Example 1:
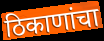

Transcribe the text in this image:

ठिकाणांचा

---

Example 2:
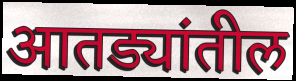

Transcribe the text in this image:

आतड्यांतील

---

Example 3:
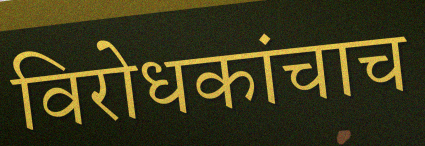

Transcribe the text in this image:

विरोधकांचाच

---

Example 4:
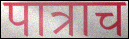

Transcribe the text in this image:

पात्राच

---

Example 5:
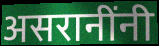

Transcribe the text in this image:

असरानींनी